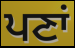
ਪਣਾਂ